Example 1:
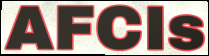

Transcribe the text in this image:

AFCIs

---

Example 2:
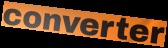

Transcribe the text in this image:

converter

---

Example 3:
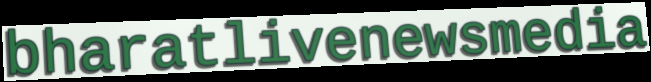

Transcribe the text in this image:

bharatlivenewsmedia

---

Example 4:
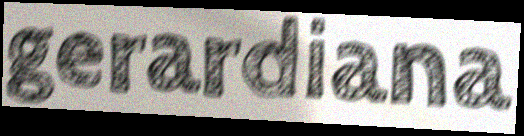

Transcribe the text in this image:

gerardiana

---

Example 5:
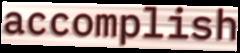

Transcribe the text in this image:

accomplish